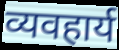
व्यवहार्य